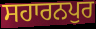
ਸਹਾਰਨਪੁਰ